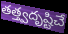
తత్త్వదృష్టిచే